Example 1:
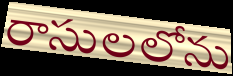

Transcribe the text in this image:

రాసులలోను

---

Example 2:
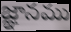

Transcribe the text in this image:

జ్ఞానము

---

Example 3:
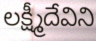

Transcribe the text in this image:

లక్ష్మీదేవిని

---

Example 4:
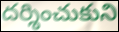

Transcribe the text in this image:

దర్శించుకుని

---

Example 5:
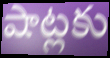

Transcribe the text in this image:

షాట్లకు